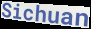
Sichuan